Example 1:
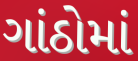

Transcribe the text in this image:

ગાંઠોમાં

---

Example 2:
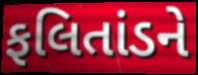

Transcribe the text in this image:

ફલિતાંડને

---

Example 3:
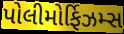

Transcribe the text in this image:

પોલીમોર્ફિઝમ્સ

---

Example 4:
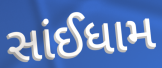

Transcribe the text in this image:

સાંઈધામ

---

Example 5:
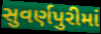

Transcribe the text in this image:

સુવર્ણપુરીમાં